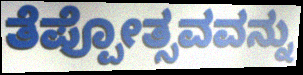
ತೆಪ್ಪೋತ್ಸವವನ್ನು